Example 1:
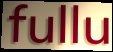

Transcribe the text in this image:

fullu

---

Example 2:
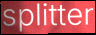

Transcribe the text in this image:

splitter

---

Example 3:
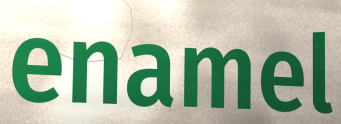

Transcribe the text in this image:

enamel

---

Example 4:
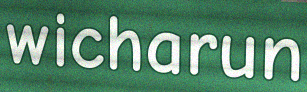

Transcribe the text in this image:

wicharun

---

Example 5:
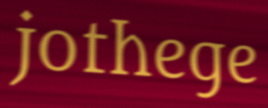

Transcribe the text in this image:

jothege